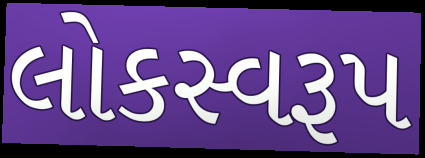
લોકસ્વરૂપ